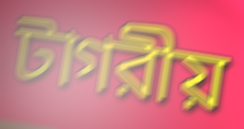
টাগরীয়